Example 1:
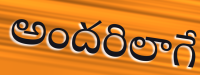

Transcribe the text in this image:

అందరిలాగే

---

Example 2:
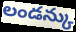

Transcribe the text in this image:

లండన్కు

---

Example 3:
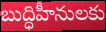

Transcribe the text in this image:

బుద్ధిహీనులకు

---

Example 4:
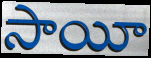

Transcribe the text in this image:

సాయీ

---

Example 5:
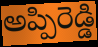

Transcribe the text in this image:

అప్పిరెడ్డి